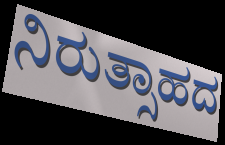
ನಿರುತ್ಸಾಹದ